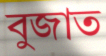
বুজাত